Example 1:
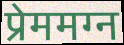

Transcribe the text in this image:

प्रेममग्न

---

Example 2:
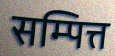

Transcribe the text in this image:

सम्पित्त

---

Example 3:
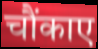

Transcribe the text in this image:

चौंकाए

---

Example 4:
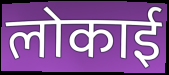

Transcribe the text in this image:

लोकाई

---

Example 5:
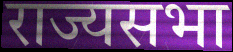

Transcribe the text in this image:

राज्‍यसभा